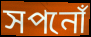
সপনোঁ